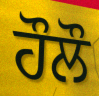
ਹੌਲੌ